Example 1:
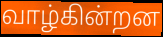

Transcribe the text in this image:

வாழ்கின்றன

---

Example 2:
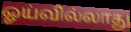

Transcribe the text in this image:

ஓய்வில்லாது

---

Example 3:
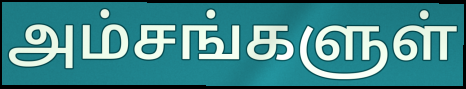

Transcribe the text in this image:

அம்சங்களுள்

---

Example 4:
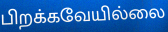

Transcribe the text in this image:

பிறக்கவேயில்லை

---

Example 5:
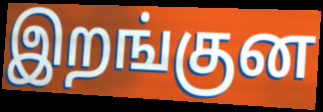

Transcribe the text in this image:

இறங்குன